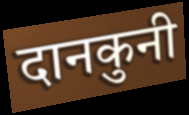
दानकुनी